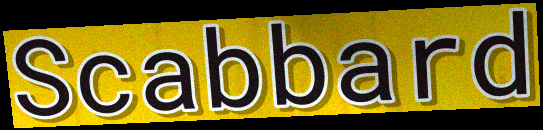
Scabbard